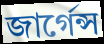
জার্গেন্স